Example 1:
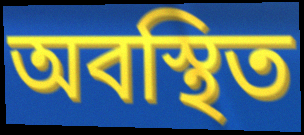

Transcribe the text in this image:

অবস্থিত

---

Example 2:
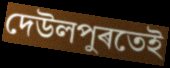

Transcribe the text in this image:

দেউলপুৰতেই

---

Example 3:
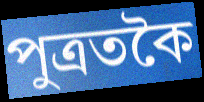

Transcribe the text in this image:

পুত্ৰতকৈ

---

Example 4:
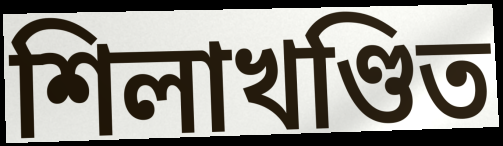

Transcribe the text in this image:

শিলাখণ্ডিত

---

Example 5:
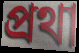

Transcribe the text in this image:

প্ৰথা